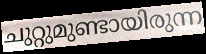
ചുറ്റുമുണ്ടായിരുന്ന